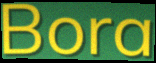
Bora